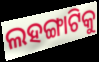
ଲହଙ୍ଗାଟିକୁ